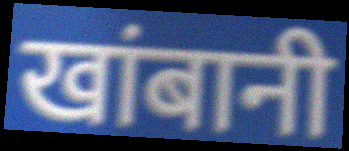
खांबानी